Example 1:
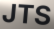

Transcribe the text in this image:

JTS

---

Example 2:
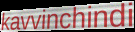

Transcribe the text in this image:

kavvinchindi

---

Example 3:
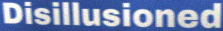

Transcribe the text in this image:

Disillusioned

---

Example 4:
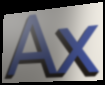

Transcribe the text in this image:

Ax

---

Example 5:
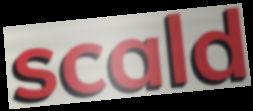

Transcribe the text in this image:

scald